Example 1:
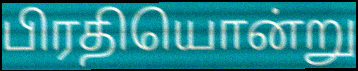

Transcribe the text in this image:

பிரதியொன்று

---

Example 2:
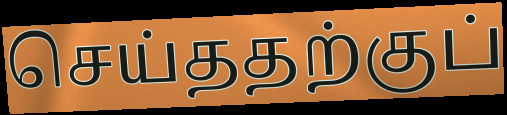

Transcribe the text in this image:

செய்ததற்குப்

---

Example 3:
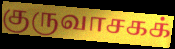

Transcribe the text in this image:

குருவாசகக்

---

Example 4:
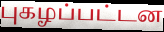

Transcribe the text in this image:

புகழப்பட்டன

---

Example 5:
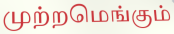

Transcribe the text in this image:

முற்றமெங்கும்